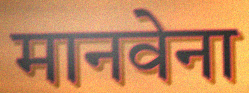
मानवेना